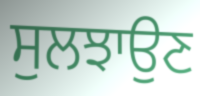
ਸੁਲਝਾਉਣ